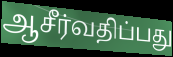
ஆசீர்வதிப்பது